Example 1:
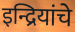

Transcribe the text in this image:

इन्द्रियांचे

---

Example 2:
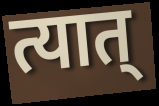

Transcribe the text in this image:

त्यात्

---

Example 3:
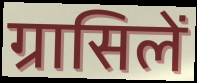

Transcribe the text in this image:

ग्रासिलें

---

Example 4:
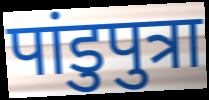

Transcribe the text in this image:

पांडुपुत्रा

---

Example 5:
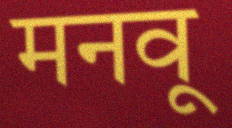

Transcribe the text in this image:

मनवू